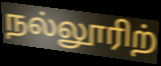
நல்லூரிற்